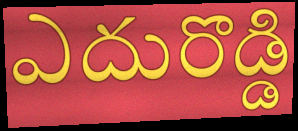
ఎదురొడ్డి